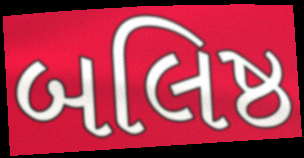
બલિષ્ઠ